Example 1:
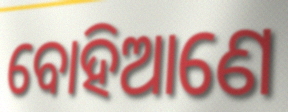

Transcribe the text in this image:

ବୋହିଆଣେ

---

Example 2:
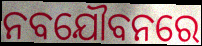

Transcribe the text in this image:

ନବଯୌବନରେ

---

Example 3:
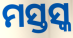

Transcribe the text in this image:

ମସ୍ତସ୍କ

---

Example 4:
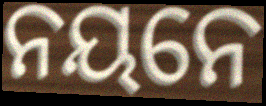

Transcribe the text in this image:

ନୟନେ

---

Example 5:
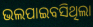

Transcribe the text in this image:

ଭଲପାଇବସିଥିଲା